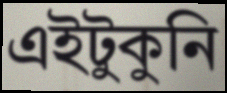
এইটুকুনি